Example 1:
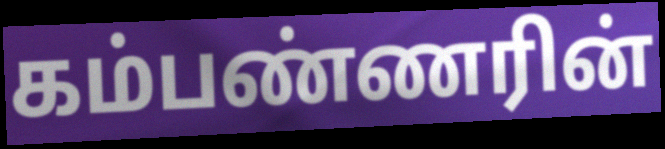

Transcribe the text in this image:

கம்பண்ணரின்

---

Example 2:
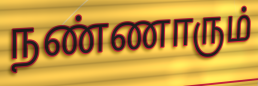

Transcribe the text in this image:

நண்ணாரும்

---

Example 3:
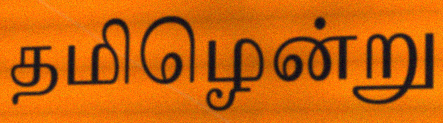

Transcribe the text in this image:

தமிழென்று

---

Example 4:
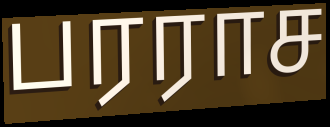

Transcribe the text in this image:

பரராச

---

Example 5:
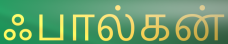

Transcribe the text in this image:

ஃபால்கன்